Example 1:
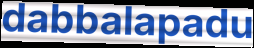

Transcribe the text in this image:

dabbalapadu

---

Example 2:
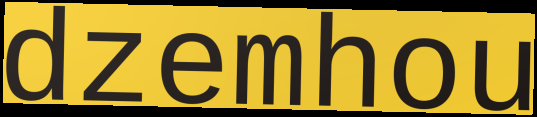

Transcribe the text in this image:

dzemhou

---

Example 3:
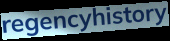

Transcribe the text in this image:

regencyhistory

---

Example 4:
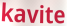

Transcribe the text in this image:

kavite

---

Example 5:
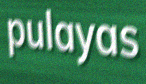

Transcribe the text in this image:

pulayas